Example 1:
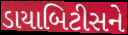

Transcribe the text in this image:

ડાયાબિટીસને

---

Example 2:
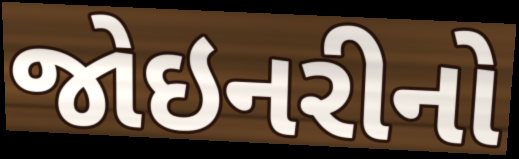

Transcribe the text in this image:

જોઇનરીનો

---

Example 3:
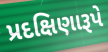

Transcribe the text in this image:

પ્રદક્ષિણારૂપે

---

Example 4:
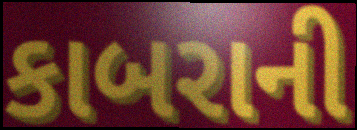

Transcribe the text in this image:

કાબરાની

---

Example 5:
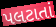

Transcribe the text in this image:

પલટાતાં